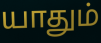
யாதும்